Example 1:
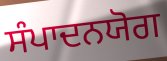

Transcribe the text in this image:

ਸੰਪਾਦਨਯੋਗ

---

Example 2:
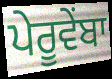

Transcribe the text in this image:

ਪੇਰੂਵੇਂਬਾ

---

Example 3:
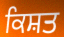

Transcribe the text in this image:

ਕਿਸ਼ਤ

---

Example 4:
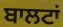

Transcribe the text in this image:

ਬਾਲਟਾਂ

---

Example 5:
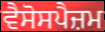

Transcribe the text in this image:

ਵੈਸੋਸਪੈਜ਼ਮ